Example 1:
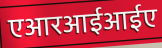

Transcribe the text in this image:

एआरआईआईए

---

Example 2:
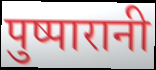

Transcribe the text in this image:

पुष्पारानी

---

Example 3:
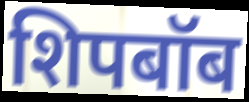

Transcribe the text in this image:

शिपबॉब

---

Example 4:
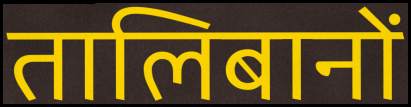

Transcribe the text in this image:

तालिबानों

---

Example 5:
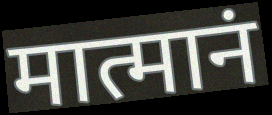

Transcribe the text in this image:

मात्मानं